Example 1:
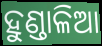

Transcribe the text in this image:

ହୁଣ୍ଡାଳିଆ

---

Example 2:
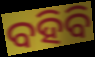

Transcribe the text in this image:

ବହିବି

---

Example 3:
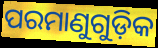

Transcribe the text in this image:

ପରମାଣୁଗୁଡ଼ିକ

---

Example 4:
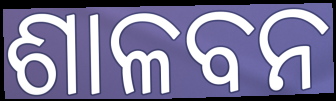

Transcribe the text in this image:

ଶାଳବନ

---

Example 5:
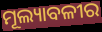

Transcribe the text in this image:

ମୂଲ୍ୟାବଳୀର